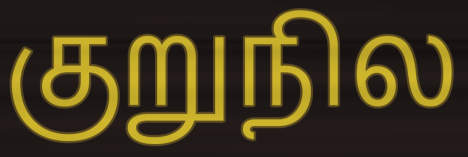
குறுநில